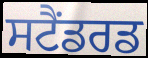
ਸਟੈਂਡਰਡ